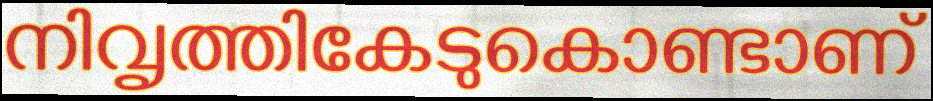
നിവൃത്തികേടുകൊണ്ടാണ്